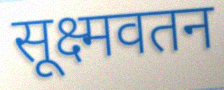
सूक्ष्मवतन